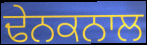
ਢੇਨਕਨਾਲ